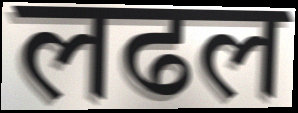
लढल